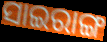
ସାଇରାଙ୍ଗ